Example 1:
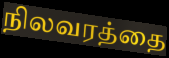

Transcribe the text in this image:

நிலவரத்தை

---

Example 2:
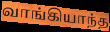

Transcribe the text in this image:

வாங்கியாந்த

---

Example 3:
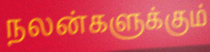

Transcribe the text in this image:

நலன்களுக்கும்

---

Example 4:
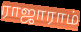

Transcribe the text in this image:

ராஜாராம்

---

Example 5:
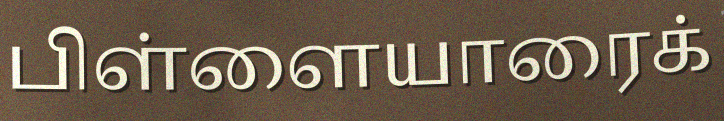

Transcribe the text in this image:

பிள்ளையாரைக்